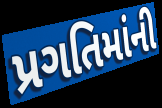
પ્રગતિમાંની